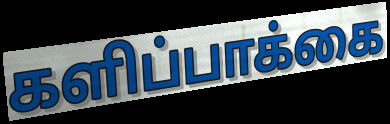
களிப்பாக்கை